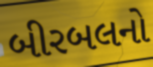
બીરબલનો